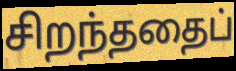
சிறந்ததைப்